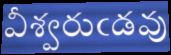
వీశ్వరుఁడవు